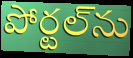
పోర్టల్‌ను